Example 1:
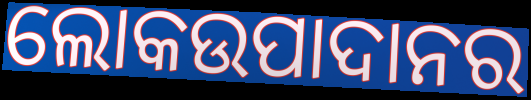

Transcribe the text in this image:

ଲୋକଉପାଦାନର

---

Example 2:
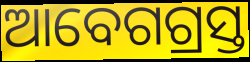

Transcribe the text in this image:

ଆବେଗଗ୍ରସ୍ତ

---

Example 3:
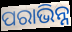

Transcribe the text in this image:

ପରାଭିନ୍ନ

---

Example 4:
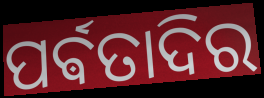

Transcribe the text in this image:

ପର୍ଵତାଦିର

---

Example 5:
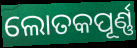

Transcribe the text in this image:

ଲୋତକପୂର୍ଣ୍ଣ